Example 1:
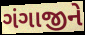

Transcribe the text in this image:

ગંગાજીને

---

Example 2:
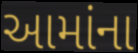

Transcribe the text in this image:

આમાંના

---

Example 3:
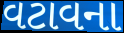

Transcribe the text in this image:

વટાવના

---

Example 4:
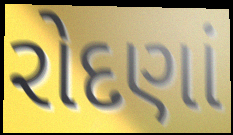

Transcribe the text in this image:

રોદણાં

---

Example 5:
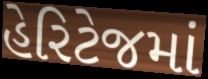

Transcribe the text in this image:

હેરિટેજમાં